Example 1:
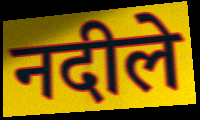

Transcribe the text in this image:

नदीले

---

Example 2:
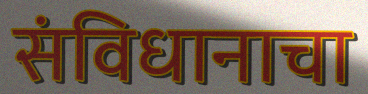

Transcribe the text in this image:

संविधानाचा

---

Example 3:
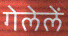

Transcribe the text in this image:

गेलेलें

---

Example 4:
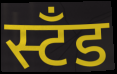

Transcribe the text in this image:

स्टँड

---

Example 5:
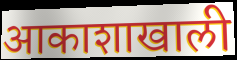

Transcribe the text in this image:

आकाशाखाली